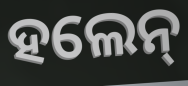
ହଲେନ୍